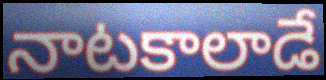
నాటకాలాడే